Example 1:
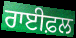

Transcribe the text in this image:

ਰਾਈਫ਼ਲ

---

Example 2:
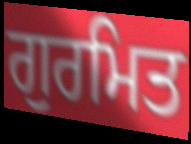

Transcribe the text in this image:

ਗੁਰਮਿਤ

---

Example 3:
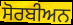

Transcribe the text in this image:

ਸੋਰਬੀਅਨ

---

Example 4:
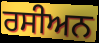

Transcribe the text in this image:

ਰਸੀਅਨ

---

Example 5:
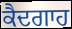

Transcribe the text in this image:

ਕੈਦਗਾਹ